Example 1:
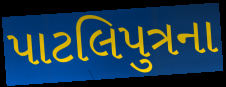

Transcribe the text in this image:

પાટલિપુત્રના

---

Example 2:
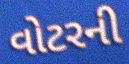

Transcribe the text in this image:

વોટરની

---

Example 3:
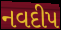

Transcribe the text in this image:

નવદીપ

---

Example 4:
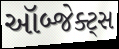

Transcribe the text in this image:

ઑબ્જેક્ટ્સ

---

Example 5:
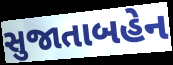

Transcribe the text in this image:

સુજાતાબહેન